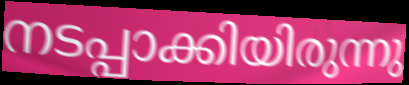
നടപ്പാക്കിയിരുന്നു